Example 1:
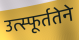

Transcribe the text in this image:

उत्स्फूर्ततेने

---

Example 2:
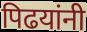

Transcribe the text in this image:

पिढयांनी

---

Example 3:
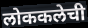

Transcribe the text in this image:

लोककलेची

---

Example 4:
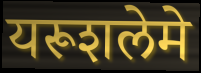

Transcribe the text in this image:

यरूशलेमे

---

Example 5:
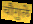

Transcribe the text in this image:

चौगुले